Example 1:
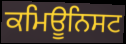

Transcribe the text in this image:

ਕਮਿਊਨਿਸਟ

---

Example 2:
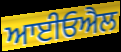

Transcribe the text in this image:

ਆਈਓਐਲ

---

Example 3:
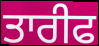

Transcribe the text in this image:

ਤਾਰੀਫ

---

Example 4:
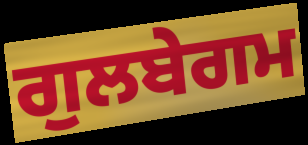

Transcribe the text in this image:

ਗੁਲਬੇਗਮ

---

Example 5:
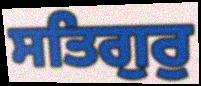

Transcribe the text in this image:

ਸਤਿਗੁਰੁ